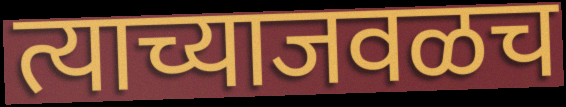
त्याच्याजवळच